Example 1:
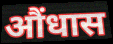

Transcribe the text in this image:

औंधास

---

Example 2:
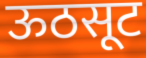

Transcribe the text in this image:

ऊठसूट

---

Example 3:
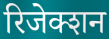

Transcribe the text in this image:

रिजेक्शन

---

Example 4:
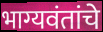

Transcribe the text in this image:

भाग्यवंतांचे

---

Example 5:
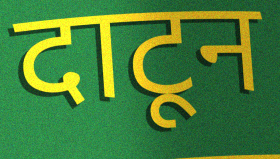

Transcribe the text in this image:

दाटून